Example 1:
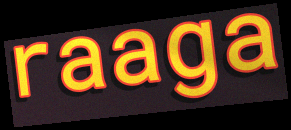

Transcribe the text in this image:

raaga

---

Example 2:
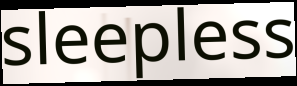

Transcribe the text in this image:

sleepless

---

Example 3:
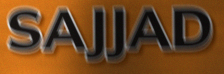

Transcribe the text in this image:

SAJJAD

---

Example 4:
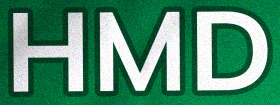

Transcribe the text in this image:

HMD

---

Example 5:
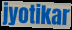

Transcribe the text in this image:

jyotikar